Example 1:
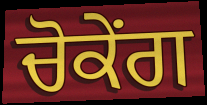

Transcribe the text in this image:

ਚੋਕੇਂਗ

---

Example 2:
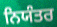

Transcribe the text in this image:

ਨਿਯੰਤਰ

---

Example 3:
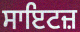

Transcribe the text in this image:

ਸਾਇਟਜ਼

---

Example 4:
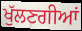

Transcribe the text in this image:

ਖੁੱਲਣਗੀਆਂ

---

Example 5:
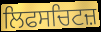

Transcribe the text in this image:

ਲਿਫਸਚਿਟਜ਼